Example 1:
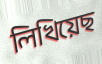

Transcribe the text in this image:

লিখিয়েছ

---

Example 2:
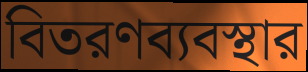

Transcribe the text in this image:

বিতরণব্যবস্থার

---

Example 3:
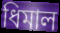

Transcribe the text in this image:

ধিমাল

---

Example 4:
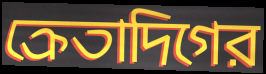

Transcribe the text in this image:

ক্রেতাদিগের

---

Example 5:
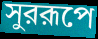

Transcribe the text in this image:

সুররূপে